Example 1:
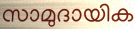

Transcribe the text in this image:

സാമുദായിക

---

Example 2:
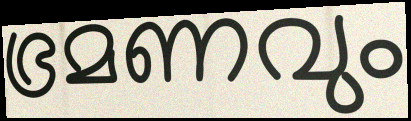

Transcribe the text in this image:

ഭ്രമണവും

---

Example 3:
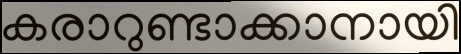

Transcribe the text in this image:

കരാറുണ്ടാക്കാനായി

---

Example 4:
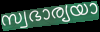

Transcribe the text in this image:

സ്വഭാര്യയാ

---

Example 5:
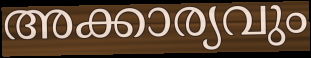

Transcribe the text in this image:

അക്കാര്യവും